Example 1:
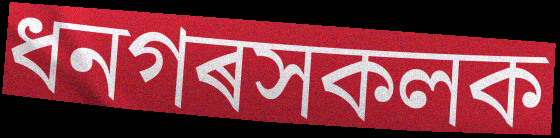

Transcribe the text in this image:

ধনগৰসকলক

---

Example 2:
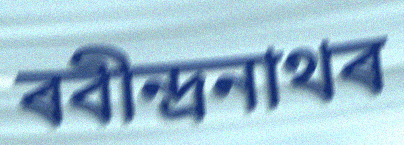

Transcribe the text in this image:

ৰবীন্দ্ৰনাথৰ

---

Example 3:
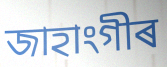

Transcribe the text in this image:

জাহাংগীৰ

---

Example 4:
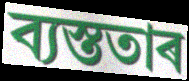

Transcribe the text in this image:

ব্যস্ততাৰ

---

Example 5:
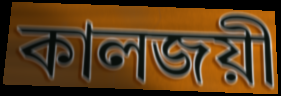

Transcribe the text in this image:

কালজয়ী